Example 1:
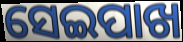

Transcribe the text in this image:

ସେଇପାଖ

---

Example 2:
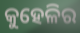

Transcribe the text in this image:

କୁହେଳିର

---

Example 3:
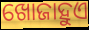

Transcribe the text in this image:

ଖୋଜାହୁଏ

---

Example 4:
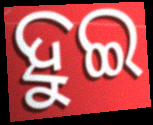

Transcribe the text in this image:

ହୁଇ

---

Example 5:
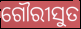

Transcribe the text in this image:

ଗୌରୀସୁତ